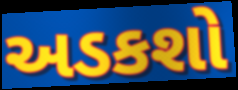
અડકશો